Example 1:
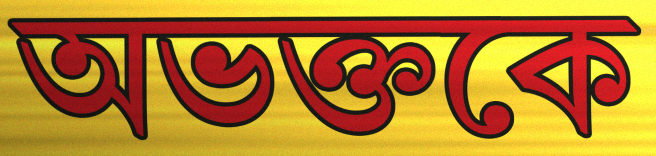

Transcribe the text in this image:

অভক্তকে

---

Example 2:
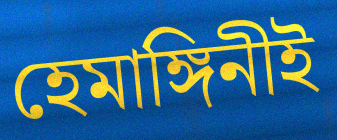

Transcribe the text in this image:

হেমাঙ্গিনীই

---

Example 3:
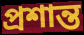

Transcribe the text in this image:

প্রশান্ত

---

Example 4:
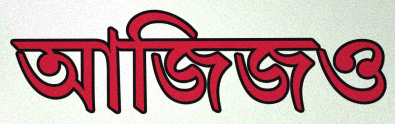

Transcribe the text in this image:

আজিজও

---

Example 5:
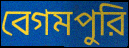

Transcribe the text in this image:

বেগমপুরি